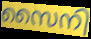
സൈനി